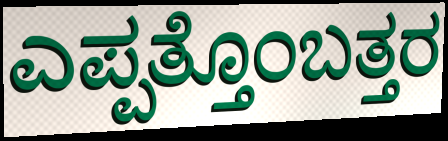
ಎಪ್ಪತ್ತೊಂಬತ್ತರ